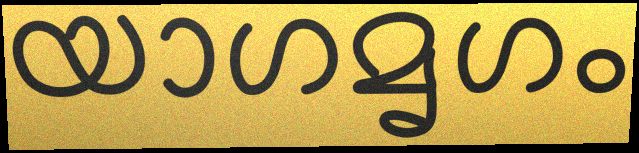
യാഗമൃഗം